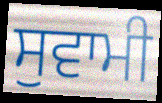
ਸੁਵਾਮੀ